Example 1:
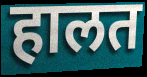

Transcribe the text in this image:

हालत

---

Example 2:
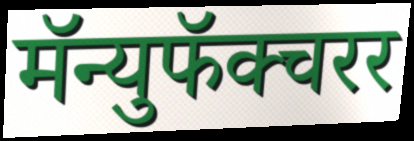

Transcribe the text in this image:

मॅन्युफॅक्चरर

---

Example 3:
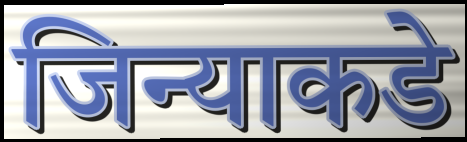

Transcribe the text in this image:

जिन्याकडे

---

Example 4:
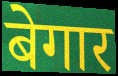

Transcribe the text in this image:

बेगार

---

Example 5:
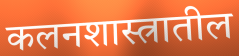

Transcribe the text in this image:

कलनशास्त्रातील